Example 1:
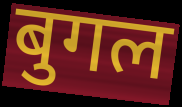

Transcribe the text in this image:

बुगल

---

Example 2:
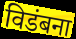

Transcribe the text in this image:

विडंबना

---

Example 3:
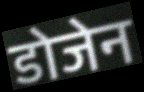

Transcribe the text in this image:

डोजेन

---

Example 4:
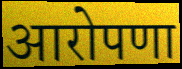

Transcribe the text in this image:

आरोपणा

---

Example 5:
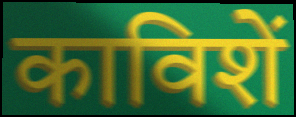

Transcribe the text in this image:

काविशें